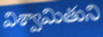
విశ్వామితుని